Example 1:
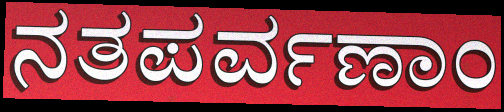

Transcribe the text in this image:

ನತಪರ್ವಣಾಂ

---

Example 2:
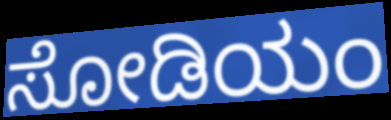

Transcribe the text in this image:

ಸೋಡಿಯಂ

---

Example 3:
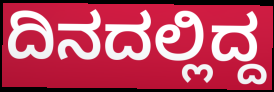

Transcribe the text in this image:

ದಿನದಲ್ಲಿದ್ದ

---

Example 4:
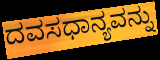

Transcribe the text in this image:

ದವಸಧಾನ್ಯವನ್ನು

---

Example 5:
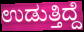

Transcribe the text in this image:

ಉಡುತ್ತಿದ್ದೆ